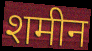
शमीन